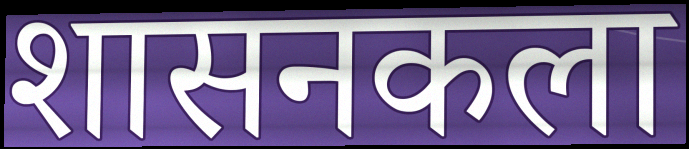
शासनकला